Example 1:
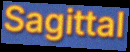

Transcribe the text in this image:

Sagittal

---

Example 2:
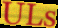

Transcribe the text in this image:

ULs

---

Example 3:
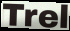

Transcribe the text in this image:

Trel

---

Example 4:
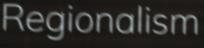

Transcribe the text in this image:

Regionalism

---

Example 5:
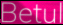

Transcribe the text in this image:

Betul